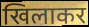
खिलाकर